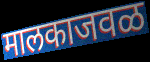
मालकाजवळ